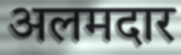
अलमदार